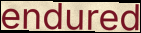
endured